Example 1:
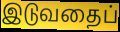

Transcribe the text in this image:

இடுவதைப்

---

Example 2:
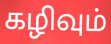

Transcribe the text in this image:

கழிவும்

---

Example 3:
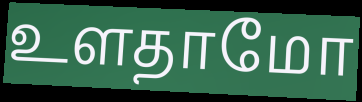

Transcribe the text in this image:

உளதாமோ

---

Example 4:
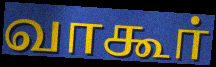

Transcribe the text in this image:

வாகூர்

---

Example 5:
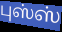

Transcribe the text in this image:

புஸ்ஸ்